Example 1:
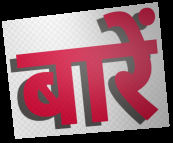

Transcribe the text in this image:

बारें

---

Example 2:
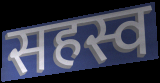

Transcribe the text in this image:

सहस्व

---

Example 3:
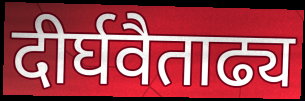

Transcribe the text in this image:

दीर्घवैताढ्य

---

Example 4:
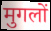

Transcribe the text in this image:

मुगलों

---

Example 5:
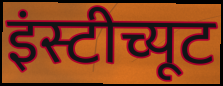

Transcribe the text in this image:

इंस्‍टीच्‍यूट